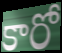
కారో